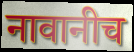
नावानीच